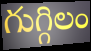
గుగ్గిలం